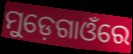
ମୁଡ଼େଗାଓଁରେ